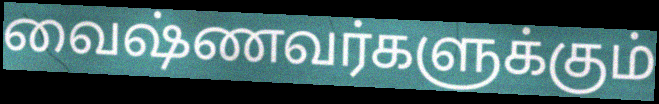
வைஷ்ணவர்களுக்கும்